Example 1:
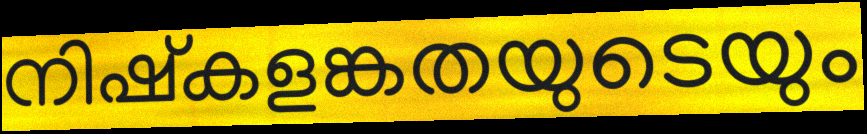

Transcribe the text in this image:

നിഷ്കളങ്കതയുടെയും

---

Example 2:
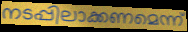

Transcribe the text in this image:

നടപ്പിലാക്കണമെന്ന്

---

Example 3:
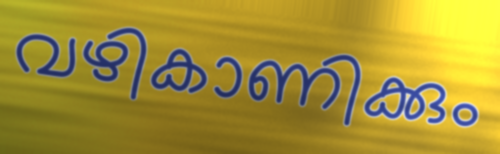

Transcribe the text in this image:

വഴികാണിക്കും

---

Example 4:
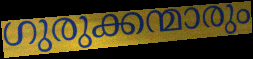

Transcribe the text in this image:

ഗുരുക്കന്മാരും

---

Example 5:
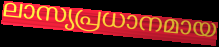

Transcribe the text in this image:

ലാസ്യപ്രധാനമായ